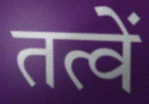
तत्वें